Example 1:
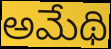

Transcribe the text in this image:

అమేథి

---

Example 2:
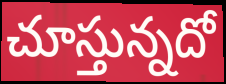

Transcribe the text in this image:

చూస్తున్నదో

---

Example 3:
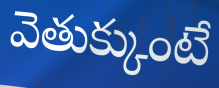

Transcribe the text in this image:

వెతుక్కుంటే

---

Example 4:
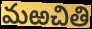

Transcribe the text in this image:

మఱచితి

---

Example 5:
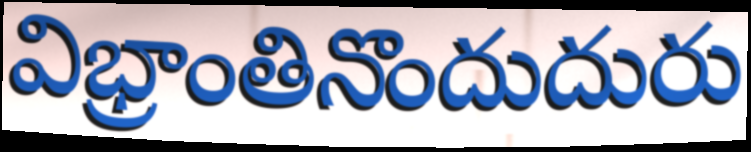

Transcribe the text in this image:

విభ్రాంతినొందుదురు